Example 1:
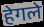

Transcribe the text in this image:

हेगले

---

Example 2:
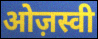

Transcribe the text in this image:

ओज़स्वी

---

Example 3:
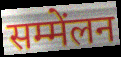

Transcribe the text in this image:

सम्मेंलन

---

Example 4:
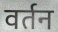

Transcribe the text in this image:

वर्तन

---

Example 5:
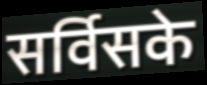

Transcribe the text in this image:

सर्विसके